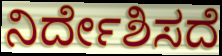
ನಿರ್ದೇಶಿಸದೆ